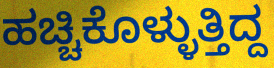
ಹಚ್ಚಿಕೊಳ್ಳುತ್ತಿದ್ದ